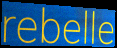
rebelle